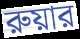
রুয়ার